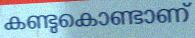
കണ്ടുകൊണ്ടാണ്